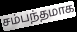
சம்பந்தமாக